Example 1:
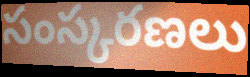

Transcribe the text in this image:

సంస్కరణలు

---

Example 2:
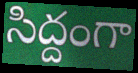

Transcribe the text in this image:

సిద్దంగా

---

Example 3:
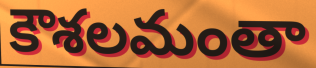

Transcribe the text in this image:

కౌశలమంతా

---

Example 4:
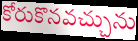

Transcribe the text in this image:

కోరుకొనవచ్చును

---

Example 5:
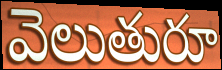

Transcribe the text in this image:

వెలుతురూ